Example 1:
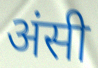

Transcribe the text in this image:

अंसी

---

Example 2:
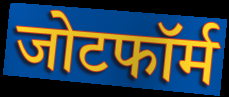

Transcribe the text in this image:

जोटफॉर्म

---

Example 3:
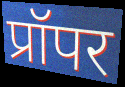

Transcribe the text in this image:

प्रॉपर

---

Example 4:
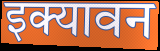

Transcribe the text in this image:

इक्‍यावन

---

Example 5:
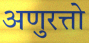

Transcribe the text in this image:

अणुरत्तो